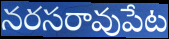
నరసరావుపేట